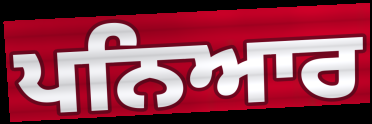
ਪਨਿਆਰ